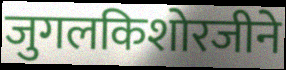
जुगलकिशोरजीने